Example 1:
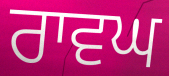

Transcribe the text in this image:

ਰਾਵਘ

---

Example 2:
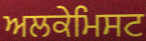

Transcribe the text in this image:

ਅਲਕੇਮਿਸਟ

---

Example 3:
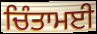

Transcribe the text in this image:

ਚਿੰਤਾਮਈ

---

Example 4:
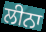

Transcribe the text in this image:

ਲੀਨਾ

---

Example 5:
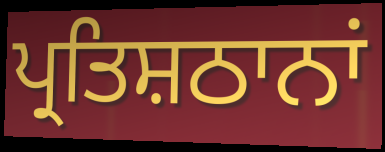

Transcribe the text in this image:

ਪ੍ਰਤਿਸ਼ਠਾਨਾਂ